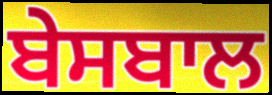
ਬੇਸਬਾਲ